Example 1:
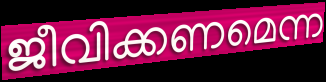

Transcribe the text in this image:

ജീവിക്കണമെന്ന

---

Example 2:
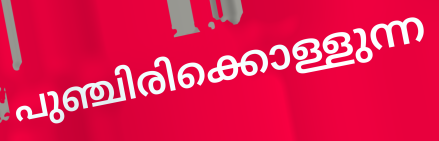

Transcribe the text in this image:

പുഞ്ചിരിക്കൊള്ളുന്ന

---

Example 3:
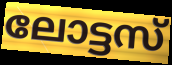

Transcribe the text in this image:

ലോട്ടസ്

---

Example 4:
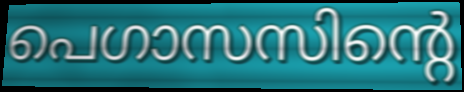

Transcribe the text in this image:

പെഗാസസിന്റെ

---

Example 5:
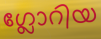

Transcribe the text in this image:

ഗ്ലോറിയ